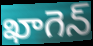
ఖాగెన్